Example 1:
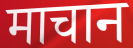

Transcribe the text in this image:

माचान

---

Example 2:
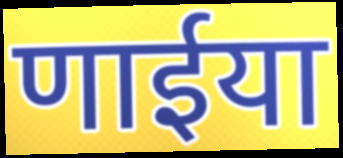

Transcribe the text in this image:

णाईया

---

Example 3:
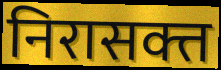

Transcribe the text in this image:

निरासक्त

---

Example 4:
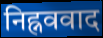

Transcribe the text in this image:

निह्नववाद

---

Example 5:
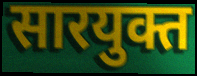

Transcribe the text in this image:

सारयुक्त